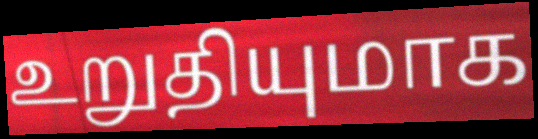
உறுதியுமாக